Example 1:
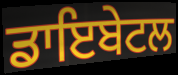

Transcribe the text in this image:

ਡਾਇਬੇਟਲ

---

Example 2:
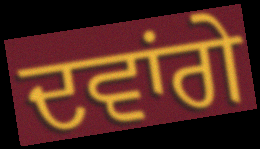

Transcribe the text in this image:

ਦਵਾਂਗੇ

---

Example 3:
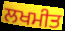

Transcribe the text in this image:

ਲਖਮੀਤ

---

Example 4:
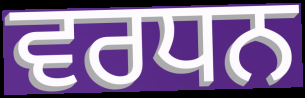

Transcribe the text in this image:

ਵਰਧਨ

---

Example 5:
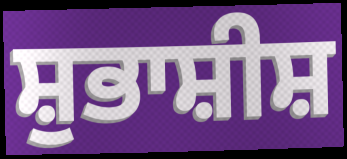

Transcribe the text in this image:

ਸ਼ੁਭਾਸ਼ੀਸ਼